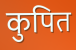
कुपित